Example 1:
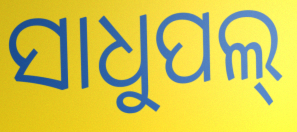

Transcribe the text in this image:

ସାଧୁପଲ୍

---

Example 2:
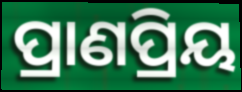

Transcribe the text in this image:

ପ୍ରାଣପ୍ରିୟ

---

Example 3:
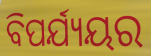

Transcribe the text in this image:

ବିପର୍ଯ୍ୟୟର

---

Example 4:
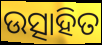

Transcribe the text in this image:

ଉତ୍ସାହିତ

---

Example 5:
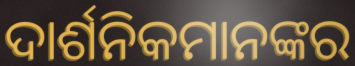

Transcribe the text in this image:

ଦାର୍ଶନିକମାନଙ୍କର